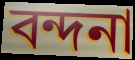
বন্দনা